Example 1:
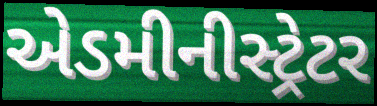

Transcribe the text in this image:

એડમીનીસ્ટ્રેટર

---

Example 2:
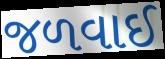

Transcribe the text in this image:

જળવાઈ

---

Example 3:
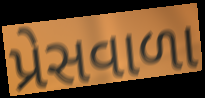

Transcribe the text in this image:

પ્રેસવાળા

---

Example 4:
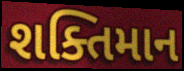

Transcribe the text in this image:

શક્તિમાન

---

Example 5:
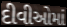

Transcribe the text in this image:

દીવીઓમાં